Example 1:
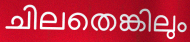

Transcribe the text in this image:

ചിലതെങ്കിലും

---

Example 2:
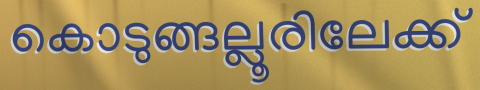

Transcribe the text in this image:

കൊടുങ്ങല്ലൂരിലേക്ക്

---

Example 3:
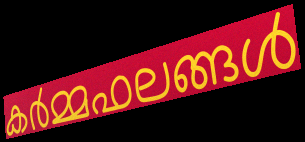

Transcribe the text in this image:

കർമ്മഫലങ്ങൾ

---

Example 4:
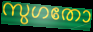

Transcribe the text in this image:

സുഗതോ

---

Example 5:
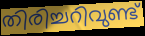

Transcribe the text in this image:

തിരിച്ചറിവുണ്ട്